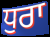
ਧੁਰਾ